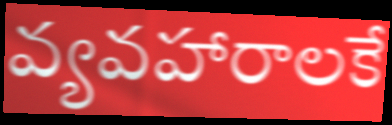
వ్యవహారాలకే